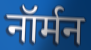
नॉर्मन